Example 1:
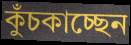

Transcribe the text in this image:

কুঁচকাচ্ছেন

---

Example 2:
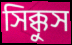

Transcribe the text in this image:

সিক্কুস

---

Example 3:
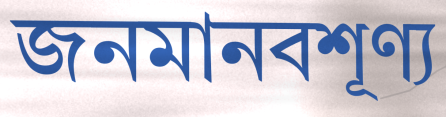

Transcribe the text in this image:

জনমানবশূণ্য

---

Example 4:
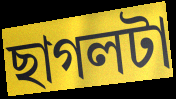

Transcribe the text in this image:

ছাগলটা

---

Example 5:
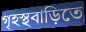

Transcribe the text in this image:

গৃহস্থবাড়িতে